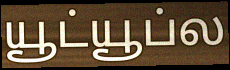
யூட்யூப்ல